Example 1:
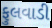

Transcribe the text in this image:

ફુલવાડી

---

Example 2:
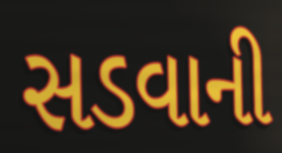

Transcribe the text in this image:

સડવાની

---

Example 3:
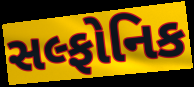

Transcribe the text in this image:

સલ્ફોનિક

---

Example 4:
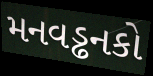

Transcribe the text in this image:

મનવડ્ઢનકો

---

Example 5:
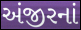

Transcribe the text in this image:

અંજીરનાં